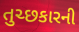
તુચ્છકારની